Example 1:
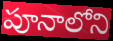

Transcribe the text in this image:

పూనాలోని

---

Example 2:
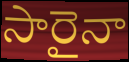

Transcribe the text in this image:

సారైనా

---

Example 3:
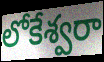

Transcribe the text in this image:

లోకేశ్వరా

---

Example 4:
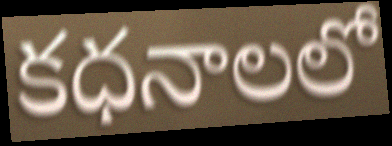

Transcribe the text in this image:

కధనాలలో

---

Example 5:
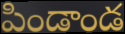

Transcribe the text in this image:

పిండాండ